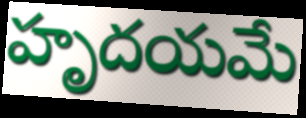
హృదయమే